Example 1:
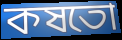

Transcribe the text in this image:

কষতো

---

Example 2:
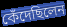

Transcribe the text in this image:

কেঁদেছিলেন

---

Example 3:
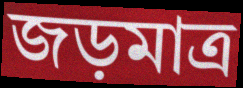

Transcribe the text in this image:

জড়মাত্র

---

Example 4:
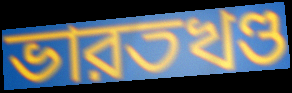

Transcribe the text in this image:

ভারতখণ্ড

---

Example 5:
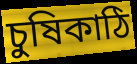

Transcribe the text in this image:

চুষিকাঠি